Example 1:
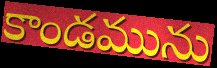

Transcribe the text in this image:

కాండమును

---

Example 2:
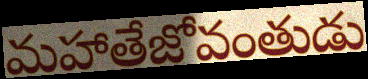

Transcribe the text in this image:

మహాతేజోవంతుడు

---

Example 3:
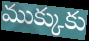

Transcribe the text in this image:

ముక్కుకు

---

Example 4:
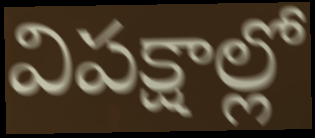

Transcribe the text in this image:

విపక్షాల్లో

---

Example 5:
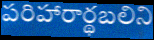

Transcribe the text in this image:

పరిహారార్థబలిని